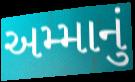
અમ્માનું